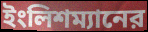
ইংলিশম্যানের